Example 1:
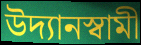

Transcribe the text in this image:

উদ্যানস্বামী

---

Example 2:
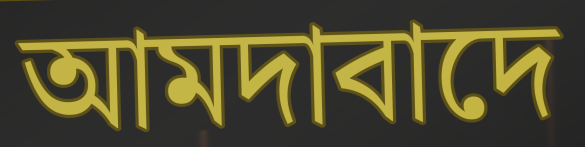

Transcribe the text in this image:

আমদাবাদে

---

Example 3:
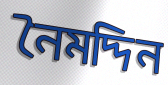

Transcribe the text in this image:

নৈমদ্দিন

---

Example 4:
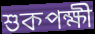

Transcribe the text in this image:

শুকপক্ষী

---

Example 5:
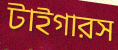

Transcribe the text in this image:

টাইগারস